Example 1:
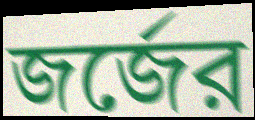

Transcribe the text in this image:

জর্জের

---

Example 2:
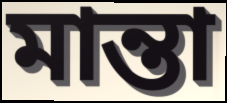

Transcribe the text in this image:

মান্তা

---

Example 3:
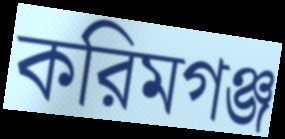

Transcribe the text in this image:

করিমগঞ্জ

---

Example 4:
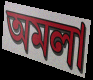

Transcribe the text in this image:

অমলা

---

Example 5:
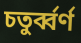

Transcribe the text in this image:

চতুর্ব্বর্ণ